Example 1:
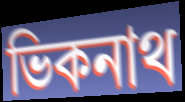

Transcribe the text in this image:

ভিকনাথ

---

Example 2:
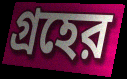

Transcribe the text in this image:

গ্রহের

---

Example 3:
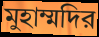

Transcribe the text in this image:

মুহাম্মদির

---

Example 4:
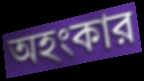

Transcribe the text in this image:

অহংকার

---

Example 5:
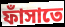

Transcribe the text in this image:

ফাঁসাতে